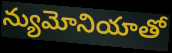
న్యుమోనియాతో